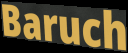
Baruch